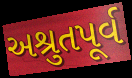
અશ્રુતપૂર્વ